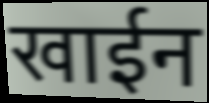
खाईन